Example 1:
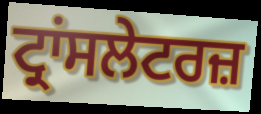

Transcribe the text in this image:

ਟ੍ਰਾਂਸਲੇਟਰਜ਼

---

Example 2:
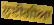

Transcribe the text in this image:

ਲੁਈਗੀਆ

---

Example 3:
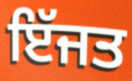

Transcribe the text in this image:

ਇੱਜਤ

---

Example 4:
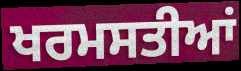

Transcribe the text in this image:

ਖਰਮਸਤੀਆਂ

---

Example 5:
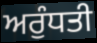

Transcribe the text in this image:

ਅਰੁੰਧਤੀ